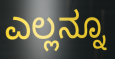
ಎಲ್ಲನ್ನೂ